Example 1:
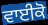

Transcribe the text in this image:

ਵਾਈਕੋ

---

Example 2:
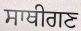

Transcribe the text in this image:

ਸਾਥੀਗਣ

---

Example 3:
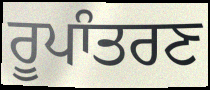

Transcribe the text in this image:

ਰੂਪਾੰਤਰਣ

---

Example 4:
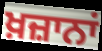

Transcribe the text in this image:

ਖ਼ਜ਼ਾਨਾਂ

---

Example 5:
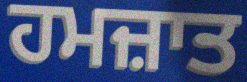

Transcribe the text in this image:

ਹਮਜ਼ਾਤ